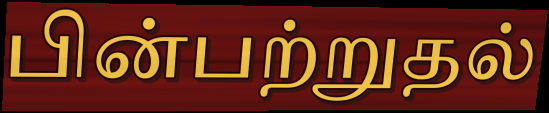
பின்பற்றுதல்